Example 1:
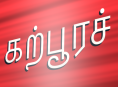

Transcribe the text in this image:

கற்பூரச்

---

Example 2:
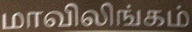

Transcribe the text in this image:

மாவிலிங்கம்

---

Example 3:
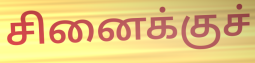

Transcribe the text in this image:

சினைக்குச்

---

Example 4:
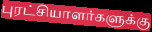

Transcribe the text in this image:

புரட்சியாளர்களுக்கு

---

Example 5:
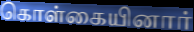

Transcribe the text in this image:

கொள்கையினார்